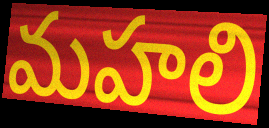
మహలి